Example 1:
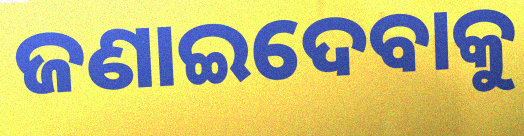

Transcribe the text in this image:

ଜଣାଇଦେବାକୁ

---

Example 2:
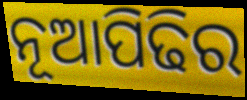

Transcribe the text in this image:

ନୂଆପିଢିର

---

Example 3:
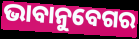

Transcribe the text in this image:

ଭାବାନୁବେଗର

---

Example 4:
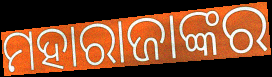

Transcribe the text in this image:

ମହାରାଜାଙ୍କର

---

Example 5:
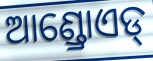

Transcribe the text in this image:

ଆଣ୍ଡ୍ରୋଏଡ୍